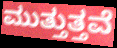
ಮುತ್ತುತ್ತವೆ